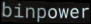
binpower